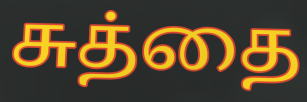
சுத்தை